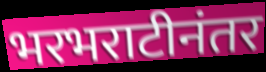
भरभराटीनंतर